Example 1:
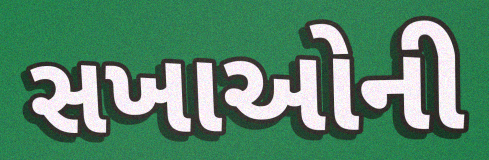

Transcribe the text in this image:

સખાઓની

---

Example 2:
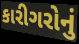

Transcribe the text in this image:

કારીગરોનું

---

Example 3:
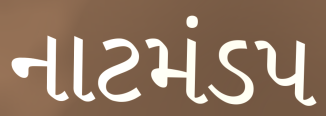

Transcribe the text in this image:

નાટમંડપ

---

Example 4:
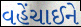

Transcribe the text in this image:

વહેંચાઈને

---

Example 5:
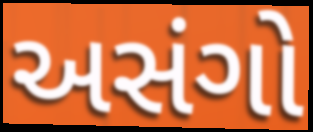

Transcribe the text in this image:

અસંગો